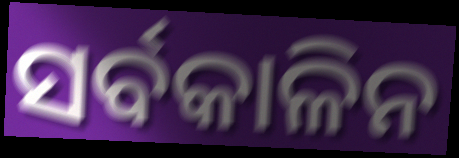
ସର୍ବକାଳିନ